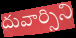
దువార్సిని